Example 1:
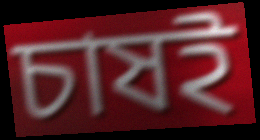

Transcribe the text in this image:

চাষই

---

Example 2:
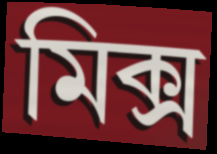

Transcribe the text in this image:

মিক্স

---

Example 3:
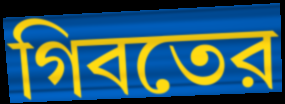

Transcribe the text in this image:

গিবতের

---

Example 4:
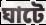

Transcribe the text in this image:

ঘাটে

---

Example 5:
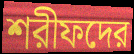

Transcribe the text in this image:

শরীফদের